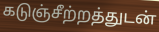
கடுஞ்சீற்றத்துடன்